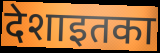
देशाइतका